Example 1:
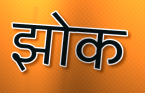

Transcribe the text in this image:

झोक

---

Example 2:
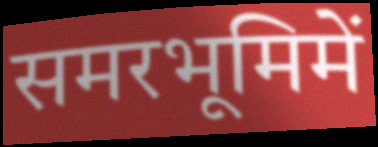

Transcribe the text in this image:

समरभूमिमें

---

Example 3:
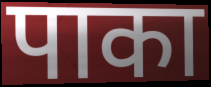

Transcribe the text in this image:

पाका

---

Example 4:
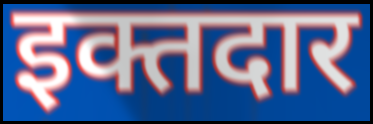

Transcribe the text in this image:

इक्तदार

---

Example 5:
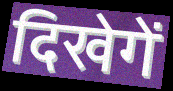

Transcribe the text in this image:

दिखेगें